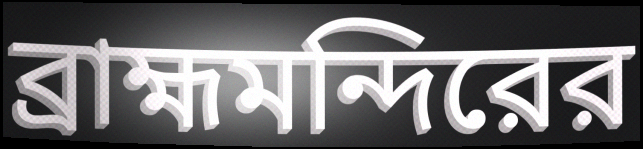
ব্রাহ্মমন্দিরের